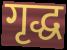
गृद्ध